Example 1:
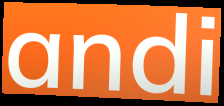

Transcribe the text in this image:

andi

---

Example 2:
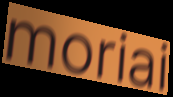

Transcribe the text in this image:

moriai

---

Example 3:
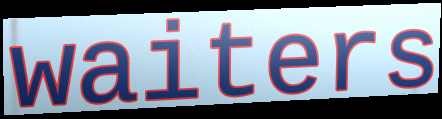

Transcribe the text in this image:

waiters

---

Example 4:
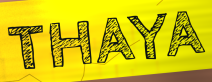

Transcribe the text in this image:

THAYA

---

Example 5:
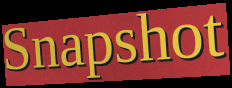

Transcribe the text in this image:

Snapshot